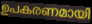
ഉപകരണമായി